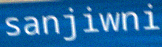
sanjiwni